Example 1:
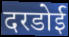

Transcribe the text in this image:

दरडोई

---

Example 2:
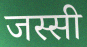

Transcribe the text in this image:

जस्सी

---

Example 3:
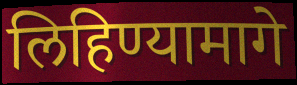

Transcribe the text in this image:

लिहिण्यामागे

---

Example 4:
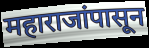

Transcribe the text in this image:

महाराजांपासून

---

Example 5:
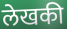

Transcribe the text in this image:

लेखकी